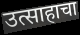
उत्साहाचा